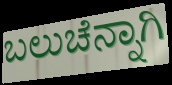
ಬಲುಚೆನ್ನಾಗಿ